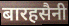
बारहसैनी